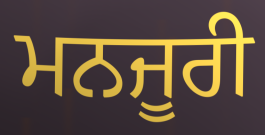
ਮਨਜੂਰੀ